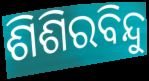
ଶିଶିରବିନ୍ଦୁ